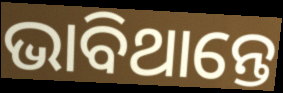
ଭାବିଥାନ୍ତେ